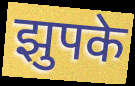
झुपके